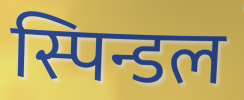
स्पिन्डल